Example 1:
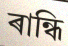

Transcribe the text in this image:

ৰান্ধি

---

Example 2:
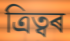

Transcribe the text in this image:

ত্ৰিত্বৰ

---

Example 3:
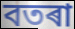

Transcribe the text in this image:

বতৰা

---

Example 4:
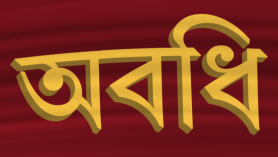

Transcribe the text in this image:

অবধি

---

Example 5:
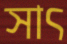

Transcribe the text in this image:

সাৎ